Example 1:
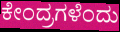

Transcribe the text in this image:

ಕೇಂದ್ರಗಳೆಂದು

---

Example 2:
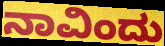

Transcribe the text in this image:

ನಾವಿಂದು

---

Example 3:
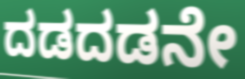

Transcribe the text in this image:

ದಡದಡನೇ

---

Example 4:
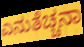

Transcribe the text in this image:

ಎನುತೆಚ್ಚನಾ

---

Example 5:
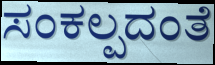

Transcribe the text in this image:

ಸಂಕಲ್ಪದಂತೆ